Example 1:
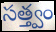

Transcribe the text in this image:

సత్త్వం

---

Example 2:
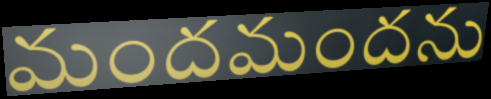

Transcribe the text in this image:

మందమందను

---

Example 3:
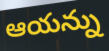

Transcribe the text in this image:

ఆయన్ను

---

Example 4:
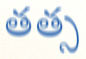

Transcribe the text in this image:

తత్స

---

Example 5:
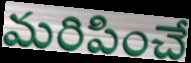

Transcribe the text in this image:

మరిపించే